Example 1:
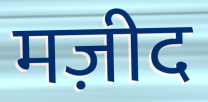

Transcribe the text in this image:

मज़ीद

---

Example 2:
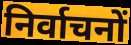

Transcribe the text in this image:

निर्वाचनों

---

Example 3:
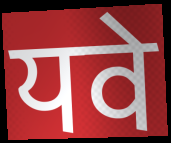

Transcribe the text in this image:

यवे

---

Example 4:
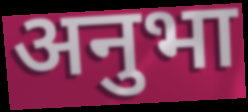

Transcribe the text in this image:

अनुभा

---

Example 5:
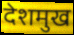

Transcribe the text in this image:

देशमुख